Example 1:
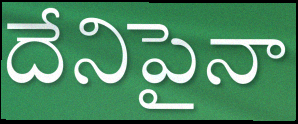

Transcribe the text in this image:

దేనిపైనా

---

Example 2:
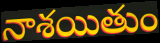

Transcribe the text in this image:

నాశయితుం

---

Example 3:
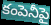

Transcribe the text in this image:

కంపెనీపై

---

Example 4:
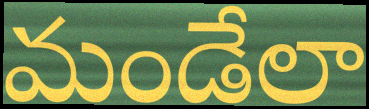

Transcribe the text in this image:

మండేలా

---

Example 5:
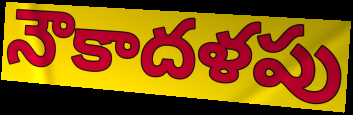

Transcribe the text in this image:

నౌకాదళపు